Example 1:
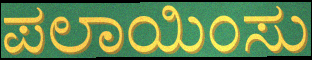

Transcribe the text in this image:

ಪಲಾಯಿಂಸು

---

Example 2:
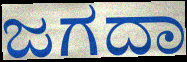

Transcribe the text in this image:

ಜಗದಾ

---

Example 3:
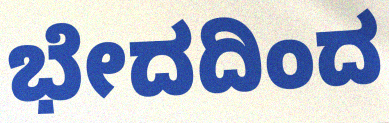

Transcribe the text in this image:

ಭೇದದಿಂದ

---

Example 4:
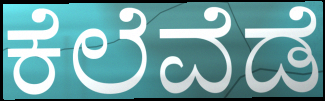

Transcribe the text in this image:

ಕೆಲೆವೆಡೆ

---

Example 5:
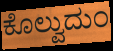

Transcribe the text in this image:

ಕೊಲ್ವುದುಂ